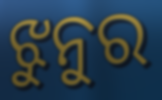
ଝୁନୁର